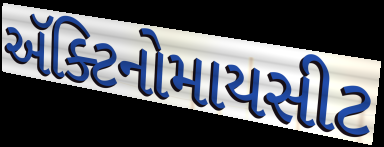
ઍક્ટિનોમાયસીટ